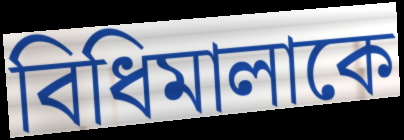
বিধিমালাকে